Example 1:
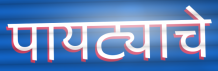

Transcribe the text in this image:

पायट्याचे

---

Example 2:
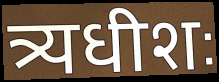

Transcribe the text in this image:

त्र्यधीशः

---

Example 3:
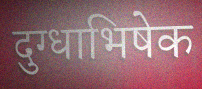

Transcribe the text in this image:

दुग्धाभिषेक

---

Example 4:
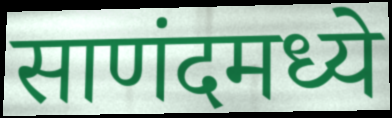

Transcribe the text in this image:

साणंदमध्ये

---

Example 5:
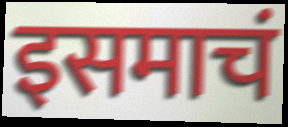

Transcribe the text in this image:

इसमाचं